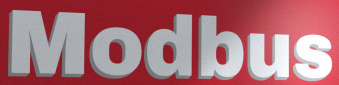
Modbus